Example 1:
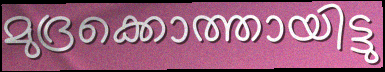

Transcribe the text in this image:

മുദ്രക്കൊത്തായിട്ടു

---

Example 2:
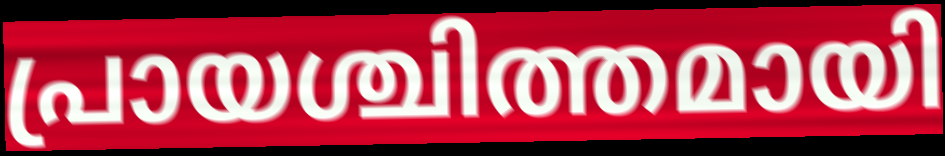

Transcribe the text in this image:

പ്രായശ്ചിത്തമായി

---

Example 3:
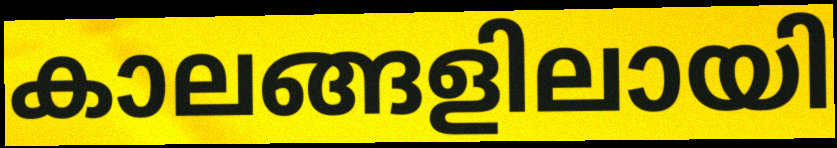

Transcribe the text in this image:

കാലങ്ങളിലായി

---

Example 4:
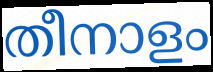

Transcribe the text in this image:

തീനാളം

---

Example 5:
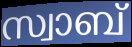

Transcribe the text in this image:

സ്വാബ്